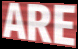
ARE